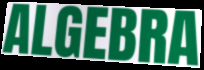
ALGEBRA